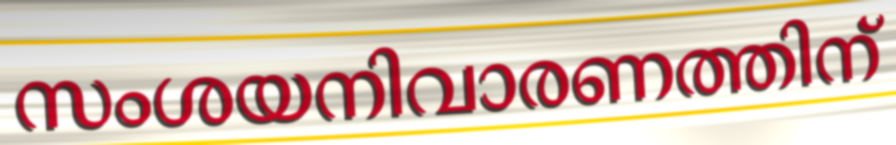
സംശയനിവാരണത്തിന്